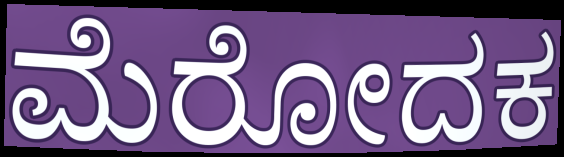
ಮೆರೋದಕ